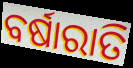
ବର୍ଷାରାତି